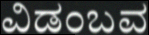
ವಿಡಂಬವ